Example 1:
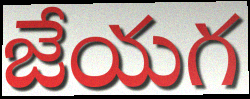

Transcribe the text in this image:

జేయగ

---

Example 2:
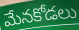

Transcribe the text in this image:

మేనకోడలు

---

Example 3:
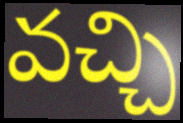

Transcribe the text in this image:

వచ్చి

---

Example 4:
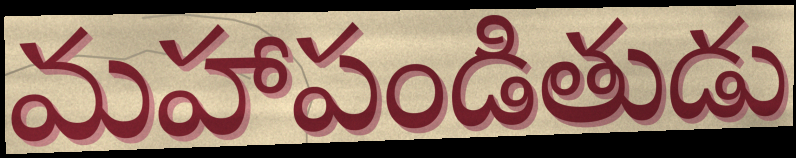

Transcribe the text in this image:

మహాపండితుడు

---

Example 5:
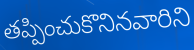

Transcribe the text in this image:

తప్పించుకొనినవారిని